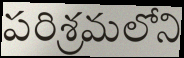
పరిశ్రమలోని